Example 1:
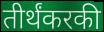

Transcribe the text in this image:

तीर्थंकरकी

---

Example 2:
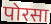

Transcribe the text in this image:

पोरसा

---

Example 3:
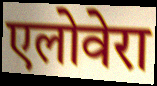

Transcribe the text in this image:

एलोवेरा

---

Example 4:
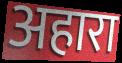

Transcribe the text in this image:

अहारा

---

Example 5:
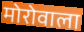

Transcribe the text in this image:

मोरोवाला